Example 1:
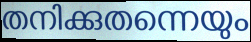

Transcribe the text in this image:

തനിക്കുതന്നെയും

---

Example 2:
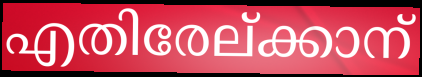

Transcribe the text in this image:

എതിരേല്ക്കാന്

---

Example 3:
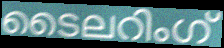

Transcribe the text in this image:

ടൈലറിംഗ്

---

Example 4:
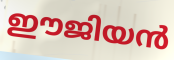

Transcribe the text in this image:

ഈജിയൻ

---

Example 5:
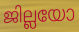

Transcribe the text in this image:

ജില്ലയോ